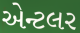
એન્ટલર